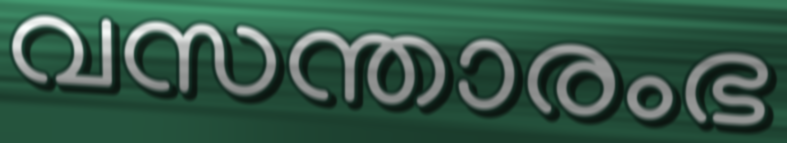
വസന്താരംഭ